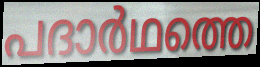
പദാർഥത്തെ